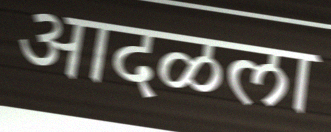
आदळला